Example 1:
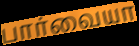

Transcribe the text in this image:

பார்வையா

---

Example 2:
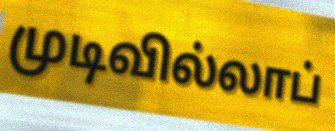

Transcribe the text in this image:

முடிவில்லாப்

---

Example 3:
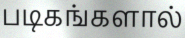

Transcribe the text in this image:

படிகங்களால்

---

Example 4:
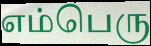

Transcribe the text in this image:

எம்பெரு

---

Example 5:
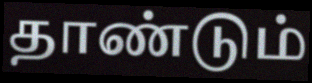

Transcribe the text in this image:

தாண்டும்